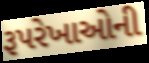
રૂપરેખાઓની